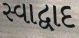
સ્વાદ્વાદ